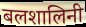
बलशालिनी